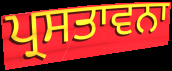
ਪ੍ਰਸਤਾਵਨਾ